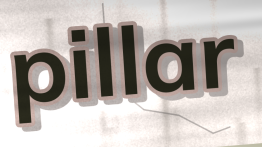
pillar